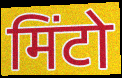
मिंटो